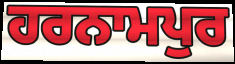
ਹਰਨਾਮਪੁਰ